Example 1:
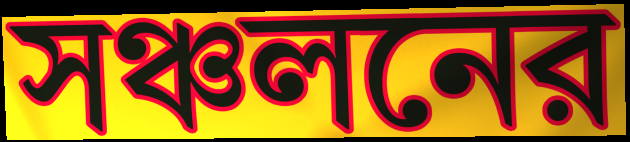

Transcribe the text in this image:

সঞ্চলনের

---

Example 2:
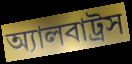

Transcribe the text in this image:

অ্যালবাট্রস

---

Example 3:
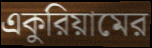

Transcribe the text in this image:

একুরিয়ামের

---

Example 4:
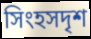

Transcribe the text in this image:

সিংহসদৃশ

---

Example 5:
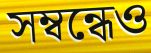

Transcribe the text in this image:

সম্বন্ধেও